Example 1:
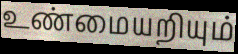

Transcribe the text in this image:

உண்மையறியும்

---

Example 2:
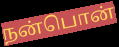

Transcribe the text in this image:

நன்பொன்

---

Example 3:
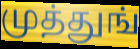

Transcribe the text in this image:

முத்துங்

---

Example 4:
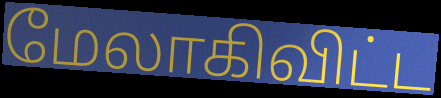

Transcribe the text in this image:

மேலாகிவிட்ட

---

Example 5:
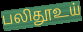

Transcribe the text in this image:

பலிதூஉய்